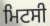
ਮਿਟਸੀ